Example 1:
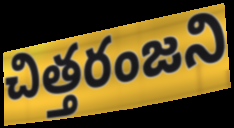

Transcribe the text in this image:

చిత్తరంజని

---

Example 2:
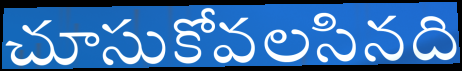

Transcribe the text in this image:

చూసుకోవలసినది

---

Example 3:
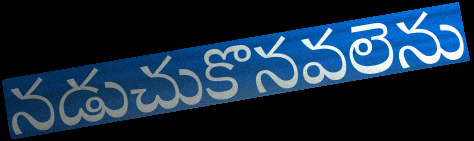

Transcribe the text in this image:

నడుచుకొనవలెను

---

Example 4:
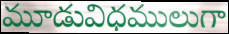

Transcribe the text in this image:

మూడువిధములుగా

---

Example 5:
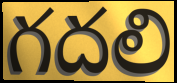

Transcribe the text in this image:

గదలి